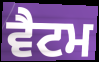
ਵੈਟਮ